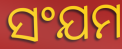
ସଂଯମ